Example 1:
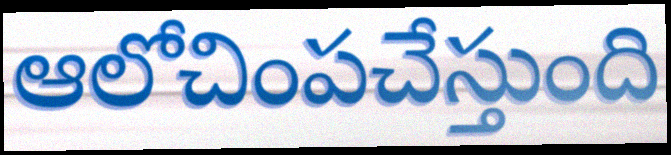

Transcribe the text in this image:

ఆలోచింపచేస్తుంది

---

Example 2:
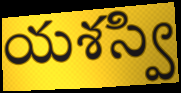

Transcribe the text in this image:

యశస్వి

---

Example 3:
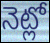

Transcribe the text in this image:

నెట్లో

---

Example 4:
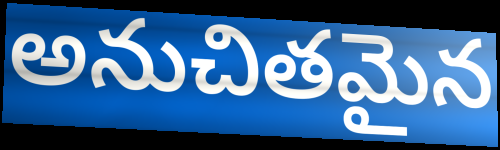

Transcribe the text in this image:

అనుచితమైన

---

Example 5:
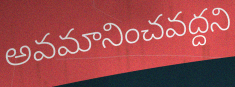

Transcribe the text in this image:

అవమానించవద్దని